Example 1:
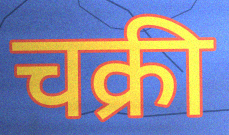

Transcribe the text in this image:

चक्री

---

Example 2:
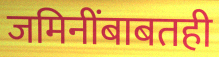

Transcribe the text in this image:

जमिनींबाबतही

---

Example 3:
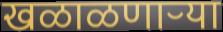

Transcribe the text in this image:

खळाळणाऱ्या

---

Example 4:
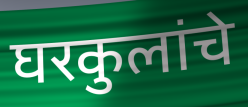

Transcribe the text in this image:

घरकुलांचे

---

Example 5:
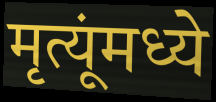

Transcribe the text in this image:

मृत्यूंमध्ये